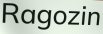
Ragozin